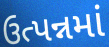
ઉત્પન્નમાં